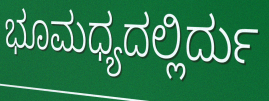
ಭೂಮಧ್ಯದಲ್ಲಿರ್ದು